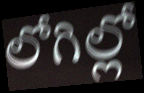
లోగిల్లో